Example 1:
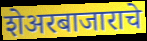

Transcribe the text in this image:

शेअरबाजाराचे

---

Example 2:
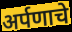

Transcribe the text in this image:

अर्पणाचे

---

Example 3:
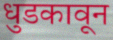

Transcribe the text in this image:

धुडकावून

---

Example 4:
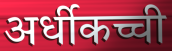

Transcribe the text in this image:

अर्धीकच्ची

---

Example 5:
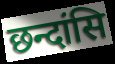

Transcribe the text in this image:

छन्दांसि